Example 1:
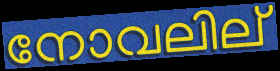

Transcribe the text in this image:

നോവലില്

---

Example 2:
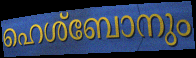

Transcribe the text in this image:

ഹെശ്ബോനും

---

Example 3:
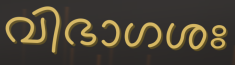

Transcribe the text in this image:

വിഭാഗശഃ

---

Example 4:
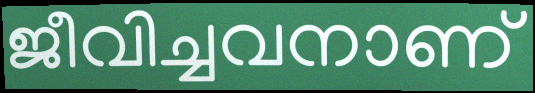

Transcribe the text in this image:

ജീവിച്ചവനാണ്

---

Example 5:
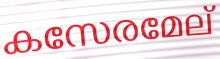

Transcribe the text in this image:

കസേരമേല്